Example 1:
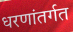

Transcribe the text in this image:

धरणांतर्गत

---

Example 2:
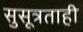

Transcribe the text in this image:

सुसूत्रताही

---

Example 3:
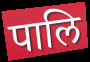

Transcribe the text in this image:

पालि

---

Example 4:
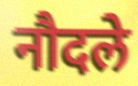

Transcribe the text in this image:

नौदले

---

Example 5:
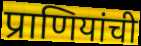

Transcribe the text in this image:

प्राणियांची